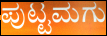
ಪುಟ್ಟಮಗು